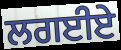
ਲਗਈਏ